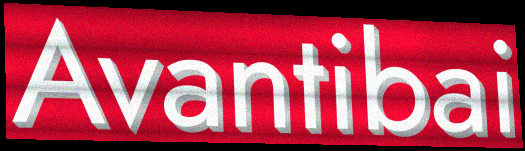
Avantibai